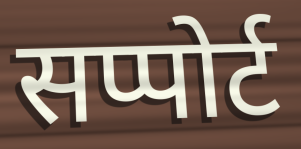
सप्पोर्ट